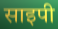
साइपी